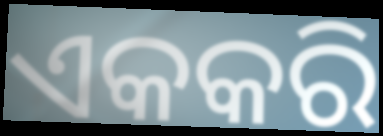
ଏକକରି